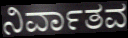
ನಿರ್ವಾತವ